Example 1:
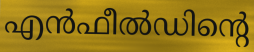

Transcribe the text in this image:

എൻഫീൽഡിന്റെ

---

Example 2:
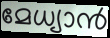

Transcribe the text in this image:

മേധ്യാൻ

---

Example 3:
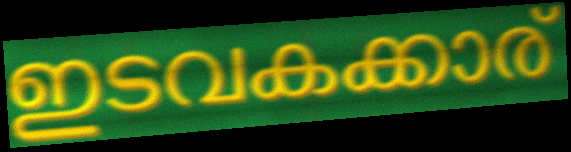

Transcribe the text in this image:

ഇടവകക്കാര്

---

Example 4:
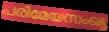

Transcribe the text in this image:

പരിമേയസംഖ്യ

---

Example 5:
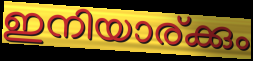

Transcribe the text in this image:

ഇനിയാര്ക്കും